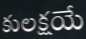
కులక్షయే